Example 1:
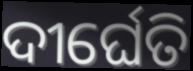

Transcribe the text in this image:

ଦୀର୍ଘେତି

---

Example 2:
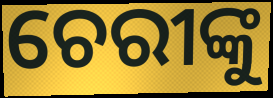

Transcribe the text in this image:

ଚେରୀଙ୍କୁ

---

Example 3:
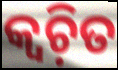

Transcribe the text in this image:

କ୍ୱଚ଼ିତ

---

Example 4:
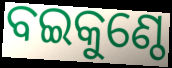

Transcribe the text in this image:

ବଇକୁଣ୍ଠେ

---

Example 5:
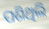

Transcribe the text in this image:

ପଶିଥିଲି